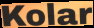
Kolar